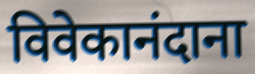
विवेकानंदाना